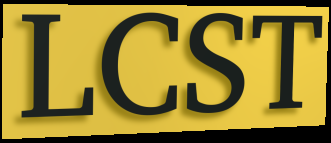
LCST